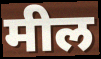
मील